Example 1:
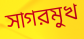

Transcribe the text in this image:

সাগরমুখ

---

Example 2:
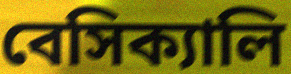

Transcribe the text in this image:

বেসিক্যালি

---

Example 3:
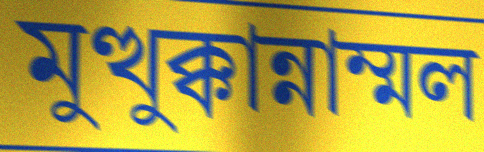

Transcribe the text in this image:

মুত্থুক্কান্নাম্মল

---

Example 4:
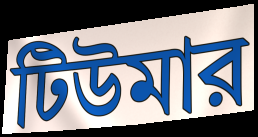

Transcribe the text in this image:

টিউমার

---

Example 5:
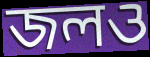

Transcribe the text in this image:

জলও